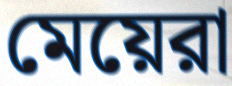
মেয়েরা